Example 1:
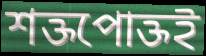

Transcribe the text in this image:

শক্তপোক্তই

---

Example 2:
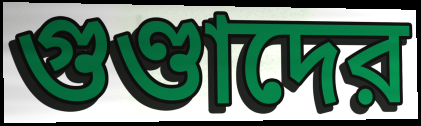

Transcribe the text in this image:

গুণ্ডাদের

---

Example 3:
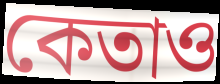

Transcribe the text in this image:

কেতাও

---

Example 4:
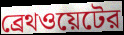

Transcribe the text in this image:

ব্রেথওয়েটের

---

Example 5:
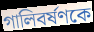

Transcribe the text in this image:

গালিবর্ষণকে